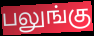
பலுங்கு